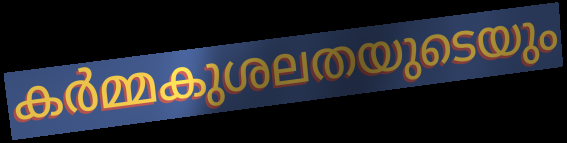
കർമ്മകുശലതയുടെയും